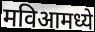
मविआमध्ये